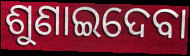
ଶୁଣାଇଦେବା